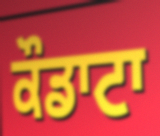
ਕੌਡਾਟਾ